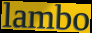
lambo